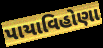
પાયાવિહોણા